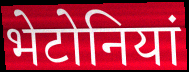
भेटोनियां